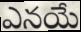
ఎనయే